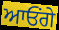
ਆਓਂਗੇ